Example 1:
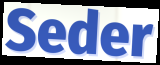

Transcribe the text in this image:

Seder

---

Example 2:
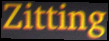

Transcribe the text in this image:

Zitting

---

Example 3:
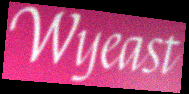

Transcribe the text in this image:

Wyeast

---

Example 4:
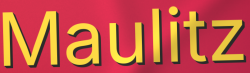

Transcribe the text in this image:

Maulitz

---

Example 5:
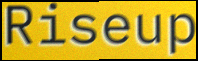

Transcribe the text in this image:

Riseup